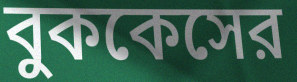
বুককেসের